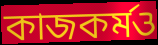
কাজকর্মও